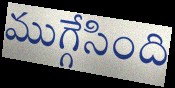
ముగ్గేసింది